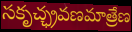
సకృచ్ఛ్రవణమాత్రేణ